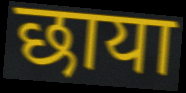
छाया